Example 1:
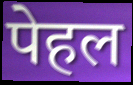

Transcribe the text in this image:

पेहल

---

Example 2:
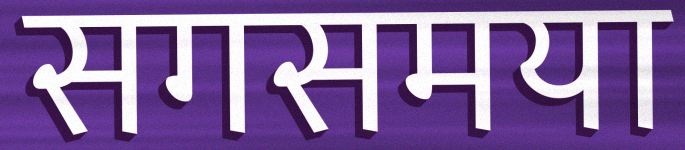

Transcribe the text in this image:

सगसमया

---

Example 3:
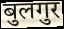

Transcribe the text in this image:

बुलगुर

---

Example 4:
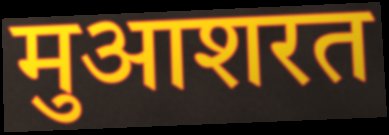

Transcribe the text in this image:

मुआशरत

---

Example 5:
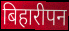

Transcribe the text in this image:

बिहारीपन